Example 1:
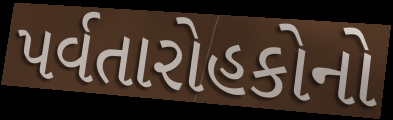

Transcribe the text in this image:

પર્વતારોહકોનો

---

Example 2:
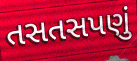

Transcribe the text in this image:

તસતસપણું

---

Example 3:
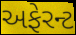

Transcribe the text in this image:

અફેરન્ટ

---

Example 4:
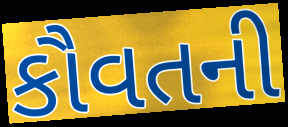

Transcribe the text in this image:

કૌવતની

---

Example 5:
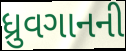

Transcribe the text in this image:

ધ્રુવગાનની